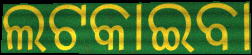
ଲଟକାଇବା